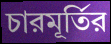
চারমূর্তির